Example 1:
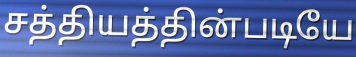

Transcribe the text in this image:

சத்தியத்தின்படியே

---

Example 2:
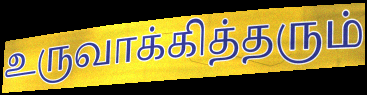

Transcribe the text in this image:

உருவாக்கித்தரும்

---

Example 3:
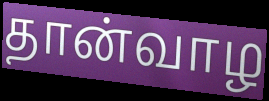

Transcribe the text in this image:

தான்வாழ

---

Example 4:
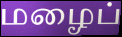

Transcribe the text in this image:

மழைப்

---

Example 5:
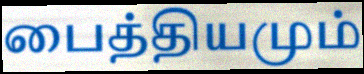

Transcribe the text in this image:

பைத்தியமும்